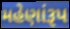
મહેણાંરૂપ